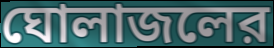
ঘোলাজলের